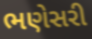
ભણેસરી